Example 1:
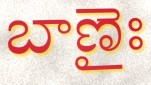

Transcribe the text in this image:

బాణైః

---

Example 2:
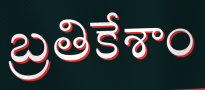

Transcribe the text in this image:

బ్రతికేశాం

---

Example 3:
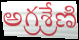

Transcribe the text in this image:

అగ్రశ్రేణి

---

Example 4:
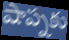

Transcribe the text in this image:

షాప్నకు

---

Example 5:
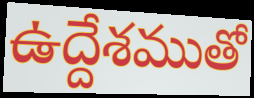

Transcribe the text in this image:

ఉద్దేశముతో